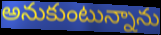
అనుకుంటున్నాను